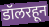
डॉलरहून